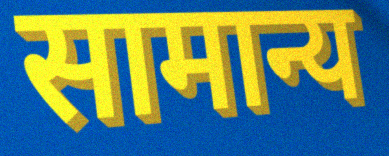
सामान्य